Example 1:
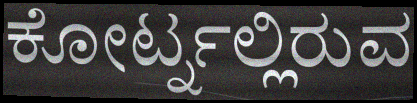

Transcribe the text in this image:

ಕೋರ್ಟ್ನಲ್ಲಿರುವ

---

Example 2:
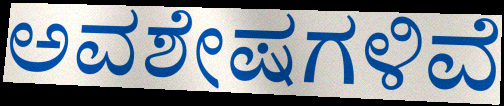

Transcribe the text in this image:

ಅವಶೇಷಗಳಿವೆ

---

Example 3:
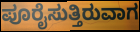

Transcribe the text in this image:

ಪೂರೈಸುತ್ತಿರುವಾಗ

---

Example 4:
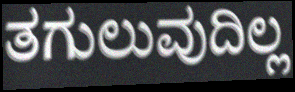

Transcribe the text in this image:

ತಗುಲುವುದಿಲ್ಲ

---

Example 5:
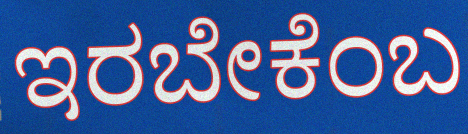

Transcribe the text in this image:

ಇರಬೇಕೆಂಬ